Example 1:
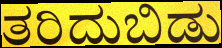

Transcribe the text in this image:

ತರಿದುಬಿಡು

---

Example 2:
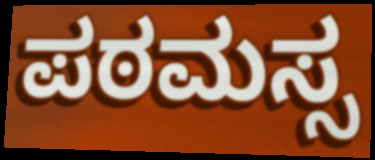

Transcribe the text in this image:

ಪಠಮಸ್ಸ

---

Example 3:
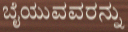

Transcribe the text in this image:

ಬೈಯುವವರನ್ನು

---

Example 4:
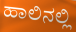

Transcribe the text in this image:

ಹಾಲಿನಲ್ಲಿ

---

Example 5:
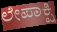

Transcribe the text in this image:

ಲೇಪಾಕ್ಷಿ